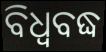
ବିଧ୍ଵବଦ୍ଧ